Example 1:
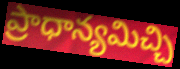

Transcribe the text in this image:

ప్రాధాన్యమిచ్చి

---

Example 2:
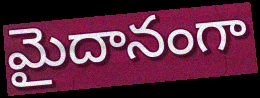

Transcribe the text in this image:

మైదానంగా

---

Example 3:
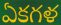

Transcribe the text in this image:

ఏకగళ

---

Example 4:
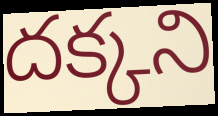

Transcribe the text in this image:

దక్కని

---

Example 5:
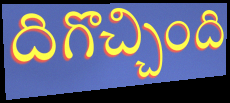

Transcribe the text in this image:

దిగొచ్చింది